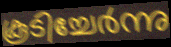
കൂടിച്ചേർന്നു